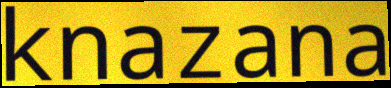
knazana